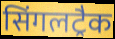
सिंगलट्रैक